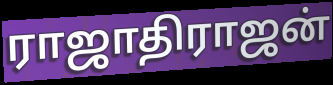
ராஜாதிராஜன்